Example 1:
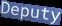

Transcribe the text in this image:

Deputy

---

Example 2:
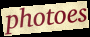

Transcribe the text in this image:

photoes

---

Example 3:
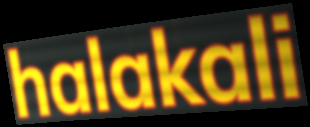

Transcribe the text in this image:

halakali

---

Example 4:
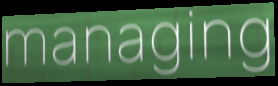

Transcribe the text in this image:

managing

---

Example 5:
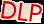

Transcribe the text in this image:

DLP